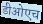
डीओएच